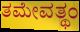
ತಮೇವತ್ಥಂ